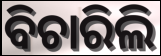
ବିଚାରିଲି